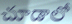
చూడాలో